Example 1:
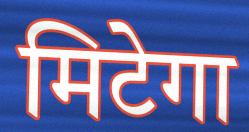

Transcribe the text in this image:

मिटेगा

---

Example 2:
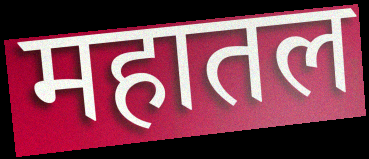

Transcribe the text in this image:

महातल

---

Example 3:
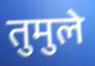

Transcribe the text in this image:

तुमुले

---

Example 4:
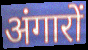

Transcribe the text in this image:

अंगारों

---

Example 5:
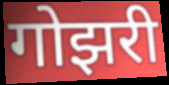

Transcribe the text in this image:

गोझरी